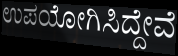
ಉಪಯೋಗಿಸಿದ್ದೇವೆ